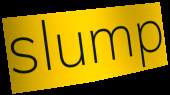
slump